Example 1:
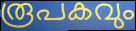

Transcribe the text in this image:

രൂപകവും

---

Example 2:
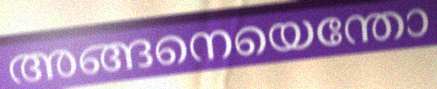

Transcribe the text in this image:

അങ്ങനെയെന്തോ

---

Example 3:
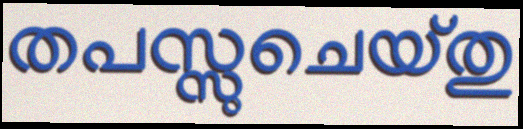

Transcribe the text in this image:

തപസ്സുചെയ്തു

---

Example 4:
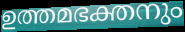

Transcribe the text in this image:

ഉത്തമഭക്തനും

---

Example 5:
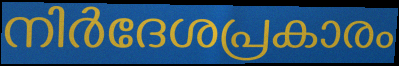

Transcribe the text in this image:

നിർദേശപ്രകാരം